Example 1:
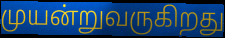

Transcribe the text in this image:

முயன்றுவருகிறது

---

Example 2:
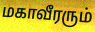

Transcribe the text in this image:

மகாவீரரும்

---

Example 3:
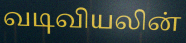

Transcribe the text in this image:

வடிவியலின்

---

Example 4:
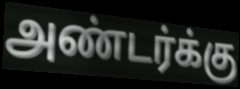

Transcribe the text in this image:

அண்டர்க்கு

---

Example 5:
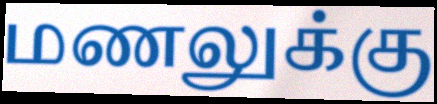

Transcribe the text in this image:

மணலுக்கு